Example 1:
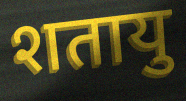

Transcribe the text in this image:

शतायु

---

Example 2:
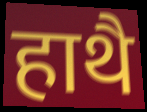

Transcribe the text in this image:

हाथै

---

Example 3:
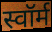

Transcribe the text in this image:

स्वॉर्म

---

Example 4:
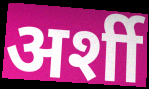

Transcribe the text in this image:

अर्शी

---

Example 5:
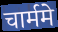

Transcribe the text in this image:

चार्ममे